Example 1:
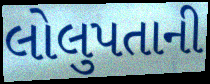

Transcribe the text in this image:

લોલુપતાની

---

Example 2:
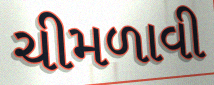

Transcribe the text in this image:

ચીમળાવી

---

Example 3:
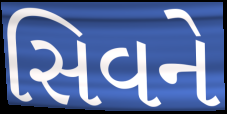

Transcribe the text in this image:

સિવને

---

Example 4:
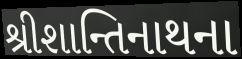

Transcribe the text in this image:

શ્રીશાન્તિનાથના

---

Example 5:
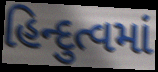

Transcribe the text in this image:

હિન્દુત્વમાં